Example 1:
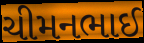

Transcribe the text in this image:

ચીમનભાઈ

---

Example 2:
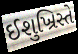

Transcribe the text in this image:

ઈશુખ્રિસ્તે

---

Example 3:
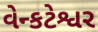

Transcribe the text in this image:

વેન્કટેશ્વર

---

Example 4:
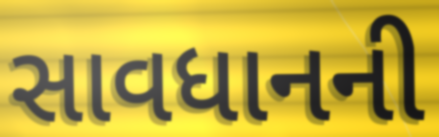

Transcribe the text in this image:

સાવધાનની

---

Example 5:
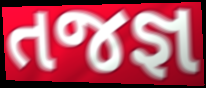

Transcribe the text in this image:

તજજ્ઞ